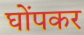
घोंपकर